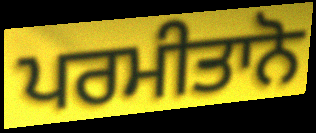
ਪਰਮੀਤਾਨੋ